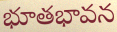
భూతభావన